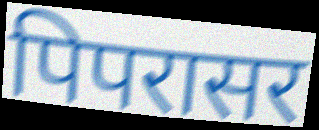
पिपरासर